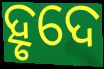
ହୃଦେ